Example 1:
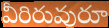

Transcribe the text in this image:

వీరిరువురూ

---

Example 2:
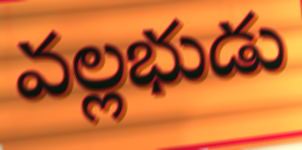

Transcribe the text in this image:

వల్లభుడు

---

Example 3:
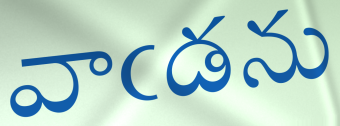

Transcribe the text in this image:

వాఁడను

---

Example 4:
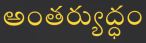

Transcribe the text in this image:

అంతర్యుద్ధం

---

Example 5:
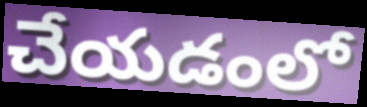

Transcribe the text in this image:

చేయడంలో